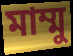
মাম্মু